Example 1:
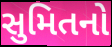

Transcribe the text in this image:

સુમિતનો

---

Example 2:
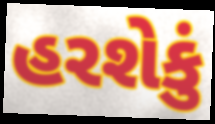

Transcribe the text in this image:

હરશેકું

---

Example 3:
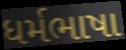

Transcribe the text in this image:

ધર્મભાષા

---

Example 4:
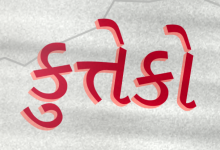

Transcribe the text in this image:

કુત્તેકો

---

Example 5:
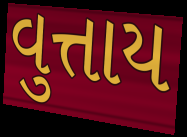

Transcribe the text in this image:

વુત્તાય